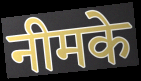
नीमके